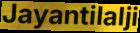
Jayantilalji